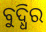
ବୁଦ୍ଧିର